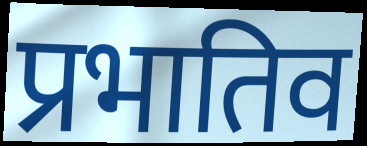
प्रभातिव